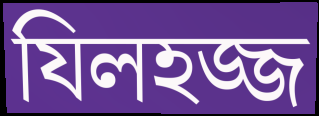
যিলহজ্জ